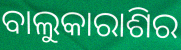
ବାଲୁକାରାଶିର